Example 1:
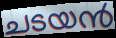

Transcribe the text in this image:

ചടയൻ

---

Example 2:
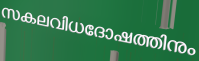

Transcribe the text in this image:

സകലവിധദോഷത്തിനും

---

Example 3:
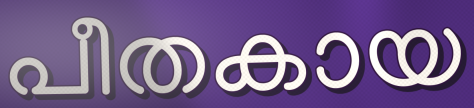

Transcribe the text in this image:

പീതകായ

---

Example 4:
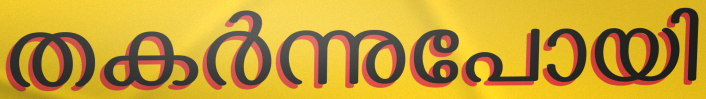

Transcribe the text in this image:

തകർന്നുപോയി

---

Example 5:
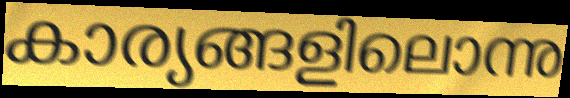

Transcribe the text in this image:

കാര്യങ്ങളിലൊന്നു